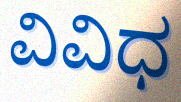
ವಿವಿಧ